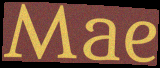
Mae